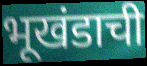
भूखंडाची